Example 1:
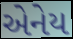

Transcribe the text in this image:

એનેય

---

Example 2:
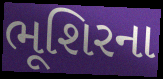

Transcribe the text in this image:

ભૂશિરના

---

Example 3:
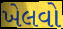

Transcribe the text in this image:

ખેલવો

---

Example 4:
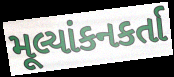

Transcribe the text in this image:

મૂલ્યાંકનકર્તા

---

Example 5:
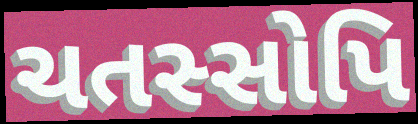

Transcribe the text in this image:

ચતસ્સોપિ